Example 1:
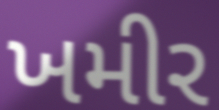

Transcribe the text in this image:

ખમીર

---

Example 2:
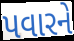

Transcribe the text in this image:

પવારને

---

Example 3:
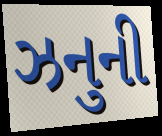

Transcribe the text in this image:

ઝનુની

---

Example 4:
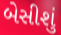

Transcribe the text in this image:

બેસીશું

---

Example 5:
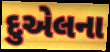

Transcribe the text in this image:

દુએલના